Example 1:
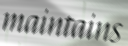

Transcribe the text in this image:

maintains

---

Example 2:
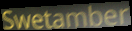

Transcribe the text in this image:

Swetamber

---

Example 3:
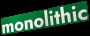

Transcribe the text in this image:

monolithic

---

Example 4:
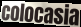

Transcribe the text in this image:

colocasia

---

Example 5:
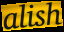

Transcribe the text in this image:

alish